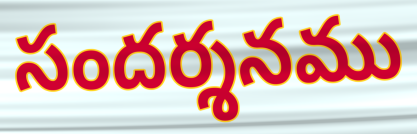
సందర్శనము